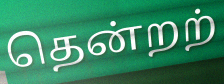
தென்றற்